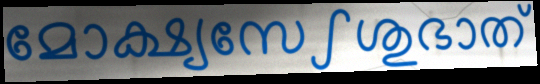
മോക്ഷ്യസേഽശുഭാത്